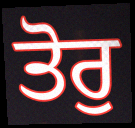
ਤੋਰੁ